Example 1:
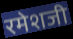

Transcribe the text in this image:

रमेशजी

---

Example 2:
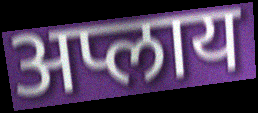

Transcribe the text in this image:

अप्लाय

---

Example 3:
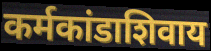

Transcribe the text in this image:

कर्मकांडाशिवाय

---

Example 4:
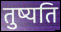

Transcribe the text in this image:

तुष्यति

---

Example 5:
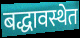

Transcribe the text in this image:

बद्धावस्थेत